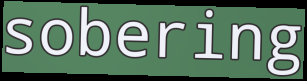
sobering